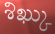
శిఖ్కు